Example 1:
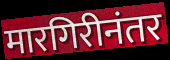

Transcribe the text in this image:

मारगिरीनंतर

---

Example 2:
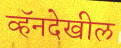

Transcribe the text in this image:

व्हॅनदेखील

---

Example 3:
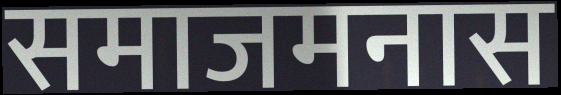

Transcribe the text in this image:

समाजमनास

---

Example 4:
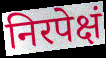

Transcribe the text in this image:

निरपेक्षं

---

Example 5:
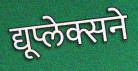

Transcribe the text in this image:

द्यूप्लेक्सने